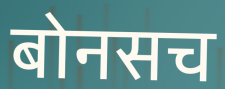
बोनसच